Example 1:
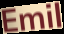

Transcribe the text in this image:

Emil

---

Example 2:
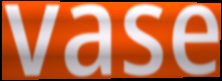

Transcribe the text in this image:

vase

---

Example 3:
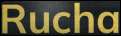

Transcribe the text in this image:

Rucha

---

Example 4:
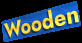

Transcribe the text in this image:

Wooden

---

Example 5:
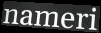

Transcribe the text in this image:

nameri